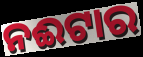
ନଈଟାର